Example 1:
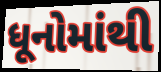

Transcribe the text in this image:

ધૂનોમાંથી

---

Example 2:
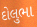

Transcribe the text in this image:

દોલુભા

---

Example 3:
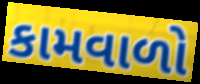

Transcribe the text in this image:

કામવાળો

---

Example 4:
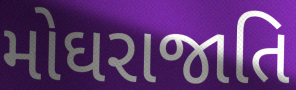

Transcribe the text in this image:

મોઘરાજાતિ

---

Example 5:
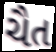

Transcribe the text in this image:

ચૈત